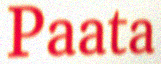
Paata